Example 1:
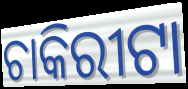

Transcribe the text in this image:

ଚାକିରୀଟା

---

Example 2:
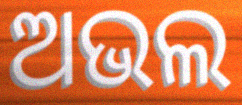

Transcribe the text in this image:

ଅଭଲ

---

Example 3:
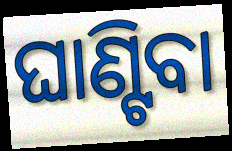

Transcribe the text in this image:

ଘାଣ୍ଟିବା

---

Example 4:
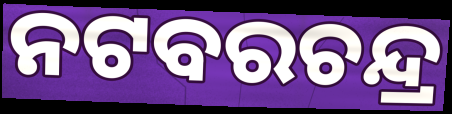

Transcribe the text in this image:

ନଟବରଚନ୍ଦ୍ର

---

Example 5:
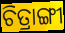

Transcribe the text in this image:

ଚିତ୍ରାଙ୍ଗୀ